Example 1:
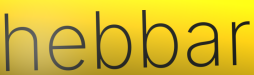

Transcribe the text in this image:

hebbar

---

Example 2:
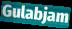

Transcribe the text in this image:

Gulabjam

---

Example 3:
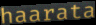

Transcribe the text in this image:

haarata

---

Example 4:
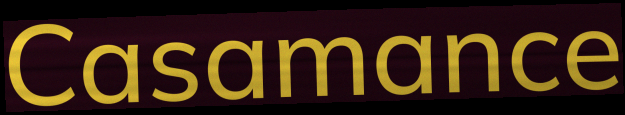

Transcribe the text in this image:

Casamance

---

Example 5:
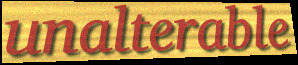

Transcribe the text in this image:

unalterable